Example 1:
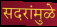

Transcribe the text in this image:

सदरांमुळे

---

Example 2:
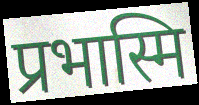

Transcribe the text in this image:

प्रभास्मि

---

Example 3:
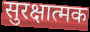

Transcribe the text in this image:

सुरक्षात्मक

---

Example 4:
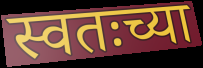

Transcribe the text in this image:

स्वतःच्या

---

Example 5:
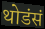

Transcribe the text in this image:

थोडंसं